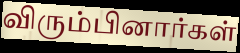
விரும்பினார்கள்